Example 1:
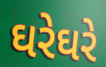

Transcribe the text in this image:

ઘરેઘરે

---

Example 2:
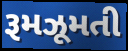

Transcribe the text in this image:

રૂમઝૂમતી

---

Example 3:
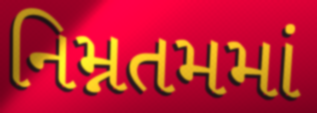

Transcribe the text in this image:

નિમ્નતમમાં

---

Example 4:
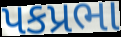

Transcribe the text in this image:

પકપ્રભા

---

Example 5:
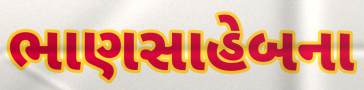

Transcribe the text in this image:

ભાણસાહેબના